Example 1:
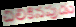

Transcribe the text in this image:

చిలికినపుడు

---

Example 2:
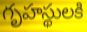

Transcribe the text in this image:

గృహస్థులకి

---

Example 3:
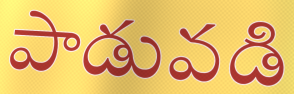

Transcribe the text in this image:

పాడువడి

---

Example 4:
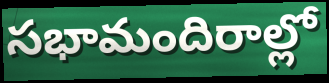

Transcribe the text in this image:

సభామందిరాల్లో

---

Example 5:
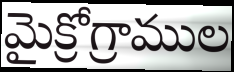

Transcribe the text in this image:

మైక్రోగ్రాముల